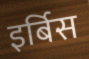
इर्बिस